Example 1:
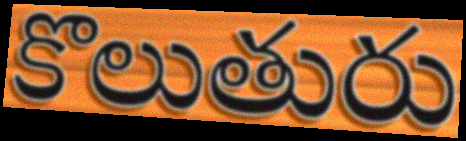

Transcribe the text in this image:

కొలుతురు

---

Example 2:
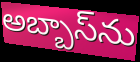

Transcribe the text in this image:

అబ్బాస్‌ను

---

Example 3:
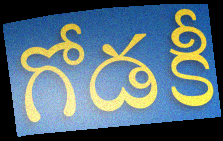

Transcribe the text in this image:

గోడకీ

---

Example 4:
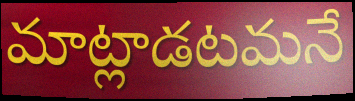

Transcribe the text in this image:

మాట్లాడటమనే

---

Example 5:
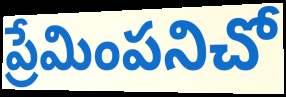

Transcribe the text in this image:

ప్రేమింపనిచో